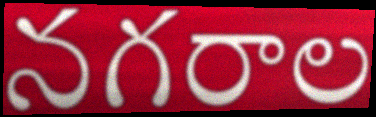
నగరాల